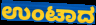
ಉಂಟಾದ